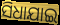
ସିଧାଯାଇ